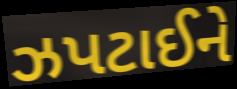
ઝપટાઈને